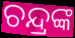
ଚନ୍ଦ୍ରଙ୍କ